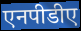
एनपीडीए